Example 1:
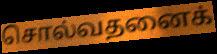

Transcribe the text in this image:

சொல்வதனைக்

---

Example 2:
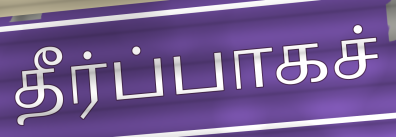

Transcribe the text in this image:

தீர்ப்பாகச்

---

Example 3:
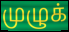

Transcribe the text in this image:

முழுக்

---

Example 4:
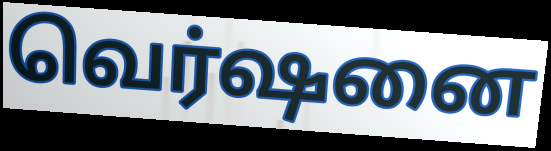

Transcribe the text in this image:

வெர்ஷனை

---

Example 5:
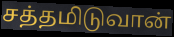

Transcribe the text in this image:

சத்தமிடுவான்